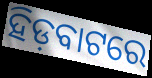
ହିଡ଼ବାଟରେ